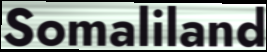
Somaliland